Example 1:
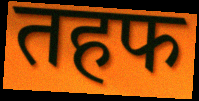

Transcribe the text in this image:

तहफ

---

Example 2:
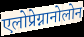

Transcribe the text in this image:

एलोप्रेग्नानोलोन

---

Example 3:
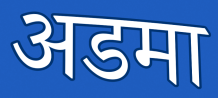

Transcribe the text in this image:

अडमा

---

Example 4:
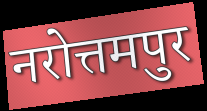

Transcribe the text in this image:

नरोत्तमपुर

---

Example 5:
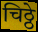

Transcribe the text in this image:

चिठ्ठे